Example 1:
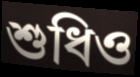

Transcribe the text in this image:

শুধিও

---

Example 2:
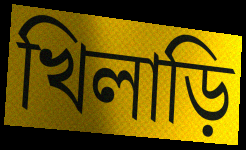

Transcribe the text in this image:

খিলাড়ি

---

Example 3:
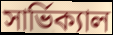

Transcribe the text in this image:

সার্ভিক্যাল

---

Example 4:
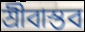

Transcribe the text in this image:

শ্রীবাস্তব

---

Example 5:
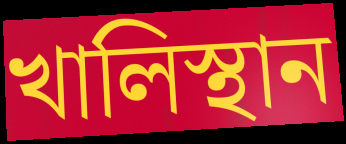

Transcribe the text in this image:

খালিস্থান